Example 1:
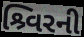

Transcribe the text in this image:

શ્ર્વિરની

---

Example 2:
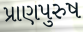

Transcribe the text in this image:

પ્રાણપુરુષ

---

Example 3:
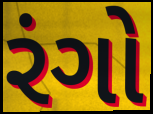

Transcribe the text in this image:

રંગો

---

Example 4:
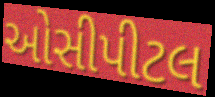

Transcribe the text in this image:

ઓસીપીટલ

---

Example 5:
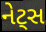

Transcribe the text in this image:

નેટ્સ